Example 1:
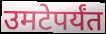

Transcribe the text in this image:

उमटेपर्यंत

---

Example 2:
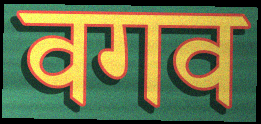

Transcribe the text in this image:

वगव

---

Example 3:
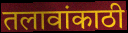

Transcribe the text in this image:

तलावांकाठी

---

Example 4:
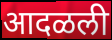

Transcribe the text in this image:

आदळली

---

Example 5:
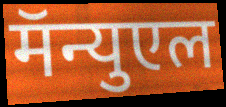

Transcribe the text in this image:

मॅन्युएल